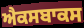
ਐਕਸਬਾਕਸ